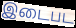
இடைபட